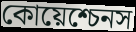
কোয়েশ্চেনস